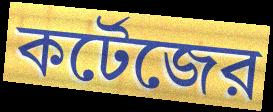
কর্টেজের